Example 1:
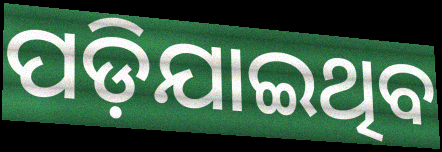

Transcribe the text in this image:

ପଡ଼ିଯାଇଥିବ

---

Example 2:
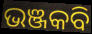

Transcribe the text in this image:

ଭଞ୍ଜକବି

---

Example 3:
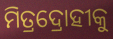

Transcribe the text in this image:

ମିତ୍ରଦ୍ରୋହୀକୁ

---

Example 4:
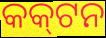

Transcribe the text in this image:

କକ୍‌ଟନ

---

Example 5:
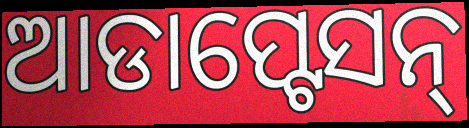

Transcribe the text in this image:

ଆଡାପ୍ଟେସନ୍